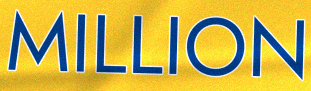
MILLION